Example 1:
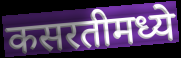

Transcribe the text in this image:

कसरतीमध्ये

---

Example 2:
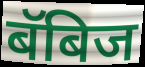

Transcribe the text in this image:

बॅबिज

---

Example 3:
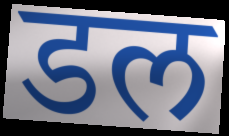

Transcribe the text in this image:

डल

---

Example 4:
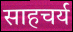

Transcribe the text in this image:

साहचर्य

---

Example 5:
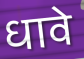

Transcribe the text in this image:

धावे